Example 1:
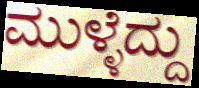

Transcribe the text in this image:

ಮುಳ್ಳೆದ್ದು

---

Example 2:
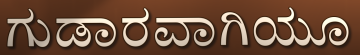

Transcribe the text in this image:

ಗುಡಾರವಾಗಿಯೂ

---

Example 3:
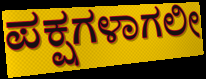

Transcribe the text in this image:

ಪಕ್ಷಗಳಾಗಲೀ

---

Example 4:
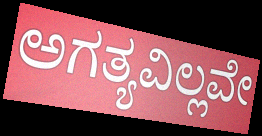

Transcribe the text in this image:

ಅಗತ್ಯವಿಲ್ಲವೇ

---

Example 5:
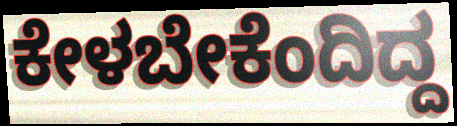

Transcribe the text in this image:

ಕೇಳಬೇಕೆಂದಿದ್ದ